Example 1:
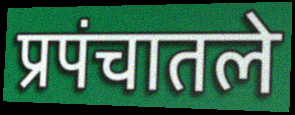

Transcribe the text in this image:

प्रपंचातले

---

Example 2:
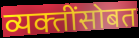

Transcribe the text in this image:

व्यक्‍तींसोबत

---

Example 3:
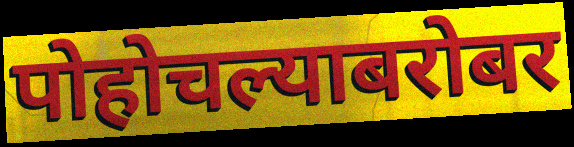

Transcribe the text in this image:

पोहोचल्याबरोबर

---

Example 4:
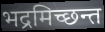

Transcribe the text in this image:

भद्रमिच्छन्त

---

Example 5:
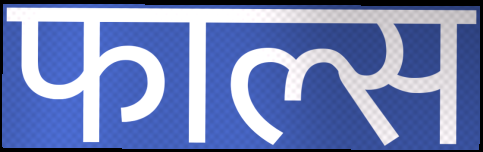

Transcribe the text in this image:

फाल्स